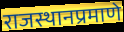
राजस्थानप्रमाणे